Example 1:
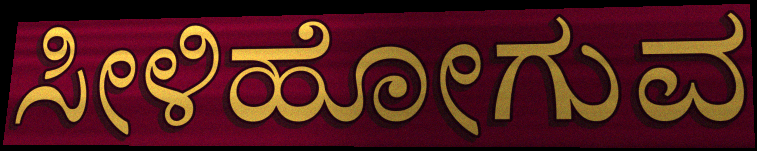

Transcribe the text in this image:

ಸೀಳಿಹೋಗುವ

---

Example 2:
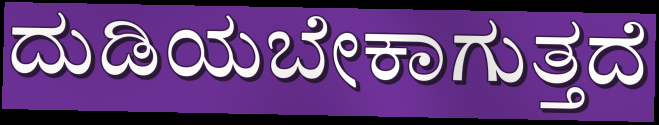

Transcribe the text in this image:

ದುಡಿಯಬೇಕಾಗುತ್ತದೆ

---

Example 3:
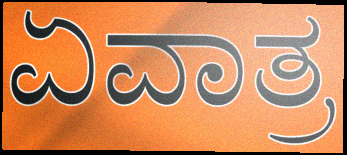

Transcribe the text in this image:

ಏವಾತ್ರ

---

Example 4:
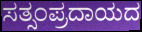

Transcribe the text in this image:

ಸತ್ಸಂಪ್ರದಾಯದ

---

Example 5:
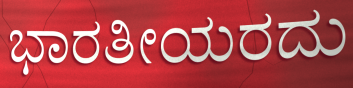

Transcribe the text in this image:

ಭಾರತೀಯರದು